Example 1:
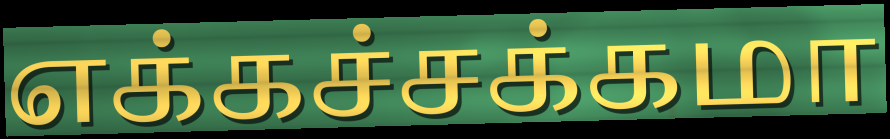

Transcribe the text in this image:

எக்கச்சக்கமா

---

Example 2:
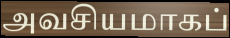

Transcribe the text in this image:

அவசியமாகப்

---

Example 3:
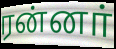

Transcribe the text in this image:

ரன்னர்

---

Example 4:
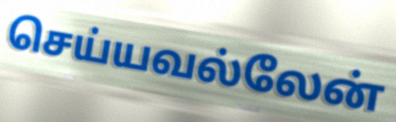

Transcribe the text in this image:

செய்யவல்லேன்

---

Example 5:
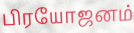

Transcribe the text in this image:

பிரயோஜனம்